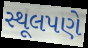
સ્થૂલપણે